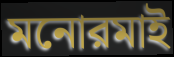
মনোরমাই